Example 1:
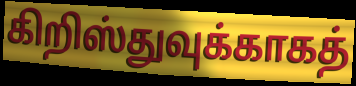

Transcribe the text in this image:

கிறிஸ்துவுக்காகத்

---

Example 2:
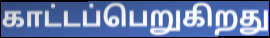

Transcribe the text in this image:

காட்டப்பெறுகிறது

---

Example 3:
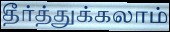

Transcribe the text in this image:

தீர்த்துக்கலாம்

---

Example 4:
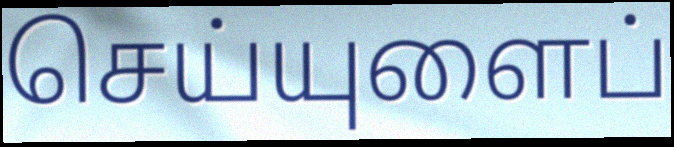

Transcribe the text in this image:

செய்யுளைப்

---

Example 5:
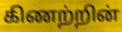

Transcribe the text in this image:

கிணற்றின்